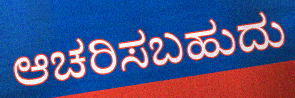
ಆಚರಿಸಬಹುದು